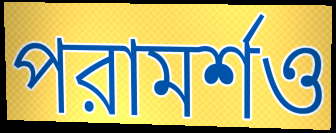
পরামর্শও